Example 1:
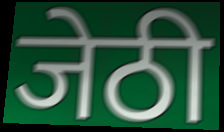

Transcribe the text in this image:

जेठी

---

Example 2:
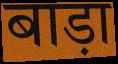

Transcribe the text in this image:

बाड़ा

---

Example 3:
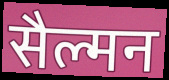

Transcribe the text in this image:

सैल्मन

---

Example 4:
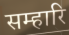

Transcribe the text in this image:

सम्हारि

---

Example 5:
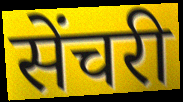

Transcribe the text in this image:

सेंचरी